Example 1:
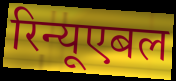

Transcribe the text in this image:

रिन्यूएबल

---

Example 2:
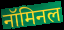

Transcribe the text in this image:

नॉमिनल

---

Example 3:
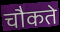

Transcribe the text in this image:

चौकते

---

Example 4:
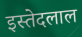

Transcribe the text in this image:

इस्तेदलाल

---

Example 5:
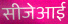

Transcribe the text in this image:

सीजेआई